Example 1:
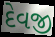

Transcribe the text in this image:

દેવજી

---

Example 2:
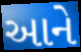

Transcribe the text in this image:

આને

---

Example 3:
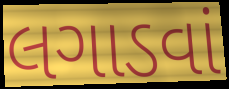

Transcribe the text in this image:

લગાડવાં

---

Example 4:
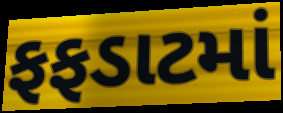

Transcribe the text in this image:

ફફડાટમાં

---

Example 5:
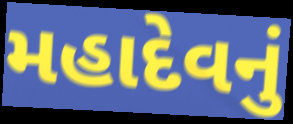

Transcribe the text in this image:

મહાદેવનું